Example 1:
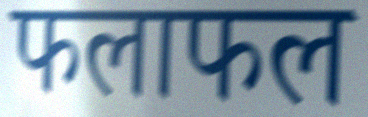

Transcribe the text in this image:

फलाफल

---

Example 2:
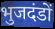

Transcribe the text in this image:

भुजदंडों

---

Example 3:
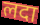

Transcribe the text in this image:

लदा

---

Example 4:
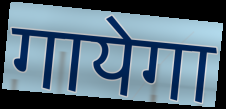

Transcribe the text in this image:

गायेगा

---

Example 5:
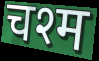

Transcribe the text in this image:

चश्म